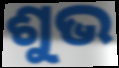
ଶୁଭ